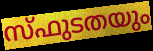
സ്ഫുടതയും